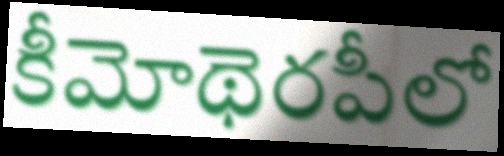
కీమోథెరపీలో